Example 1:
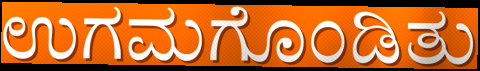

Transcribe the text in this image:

ಉಗಮಗೊಂಡಿತು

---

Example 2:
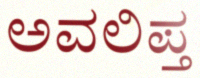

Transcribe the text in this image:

ಅವಲಿಪ್ತ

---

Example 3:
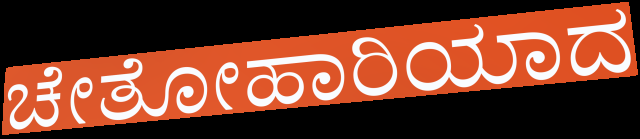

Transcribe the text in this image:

ಚೇತೋಹಾರಿಯಾದ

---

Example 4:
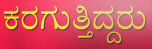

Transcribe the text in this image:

ಕರಗುತ್ತಿದ್ದರು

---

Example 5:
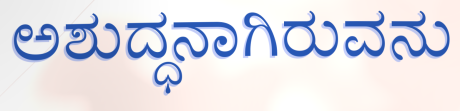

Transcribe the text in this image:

ಅಶುದ್ಧನಾಗಿರುವನು